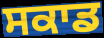
ਸਕਾਡ